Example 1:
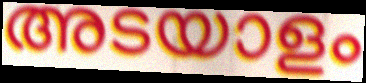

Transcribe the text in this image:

അടയാളം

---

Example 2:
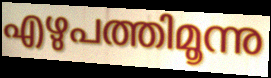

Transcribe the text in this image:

എഴുപത്തിമൂന്നു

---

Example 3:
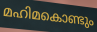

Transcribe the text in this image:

മഹിമകൊണ്ടും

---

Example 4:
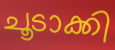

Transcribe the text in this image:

ചൂടാക്കി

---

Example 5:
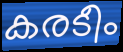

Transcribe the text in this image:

കരടീം